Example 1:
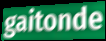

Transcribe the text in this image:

gaitonde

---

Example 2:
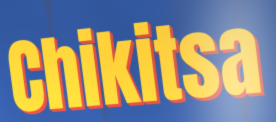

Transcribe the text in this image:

Chikitsa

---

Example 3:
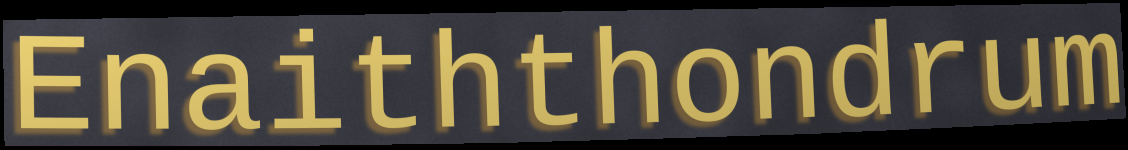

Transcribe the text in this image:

Enaiththondrum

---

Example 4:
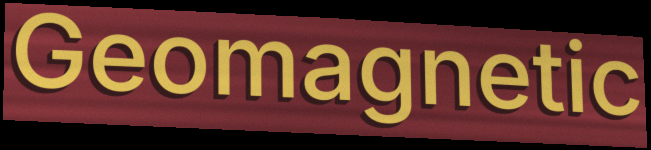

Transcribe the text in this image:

Geomagnetic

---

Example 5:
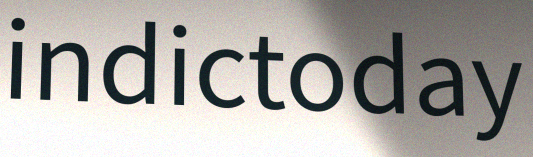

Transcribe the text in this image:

indictoday